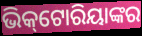
ଭିକ୍‌ଟୋରିୟାଙ୍କର